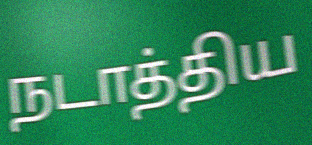
நடாத்திய